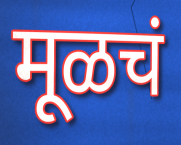
मूळचं